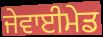
ਜੇਵਾਈਮੇਡ